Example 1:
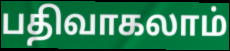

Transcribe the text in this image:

பதிவாகலாம்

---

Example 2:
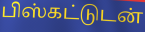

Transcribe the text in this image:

பிஸ்கட்டுடன்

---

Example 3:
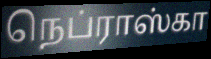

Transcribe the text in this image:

நெப்ராஸ்கா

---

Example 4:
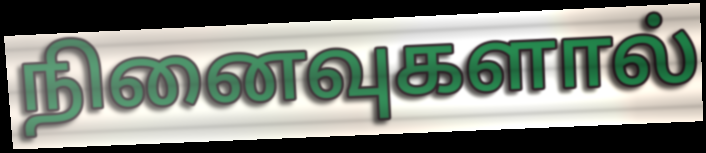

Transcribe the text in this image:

நினைவுகளால்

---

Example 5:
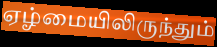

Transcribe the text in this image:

ஏழ்மையிலிருந்தும்